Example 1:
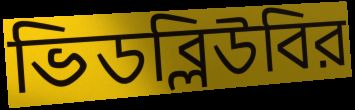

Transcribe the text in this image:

ভিডব্লিউবির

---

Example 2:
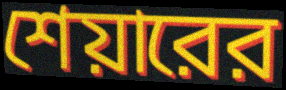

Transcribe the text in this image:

শেয়ারের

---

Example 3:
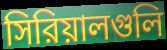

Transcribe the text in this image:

সিরিয়ালগুলি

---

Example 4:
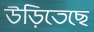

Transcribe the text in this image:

উড়িতেছে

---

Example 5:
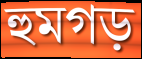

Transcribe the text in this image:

হুমগড়